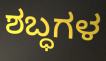
ಶಬ್ಧಗಳ